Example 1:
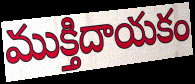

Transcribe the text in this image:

ముక్తిదాయకం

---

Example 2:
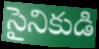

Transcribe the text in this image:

సైనికుడి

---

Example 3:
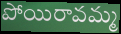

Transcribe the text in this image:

పోయిరావమ్మ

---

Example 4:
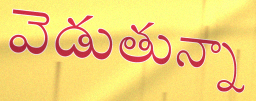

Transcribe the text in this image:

వెడుతున్నా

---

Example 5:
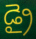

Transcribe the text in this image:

డ్రై